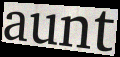
aunt